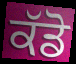
ਕੱਡੋ